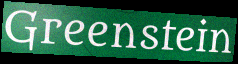
Greenstein